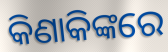
କିଣାକିଙ୍କରେ